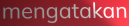
mengatakan